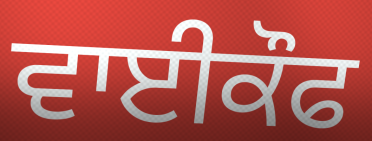
ਵਾਈਕੌਫ